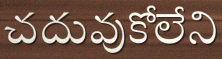
చదువుకోలేని